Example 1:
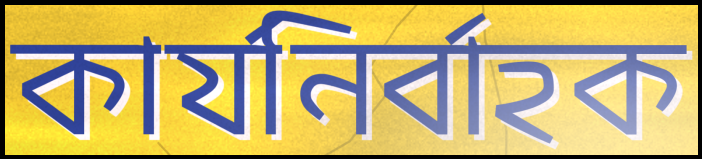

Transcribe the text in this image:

কাৰ্যনিৰ্বাহক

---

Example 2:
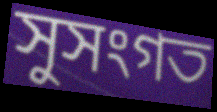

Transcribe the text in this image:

সুসংগত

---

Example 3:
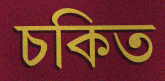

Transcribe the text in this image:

চকিত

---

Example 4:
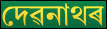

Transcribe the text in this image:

দেৱনাথৰ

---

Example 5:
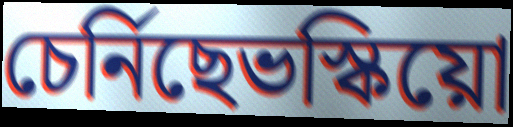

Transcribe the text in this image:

চেৰ্নিছেভস্কিয়ো